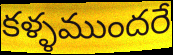
కళ్ళముందరే